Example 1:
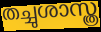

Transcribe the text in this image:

തച്ചുശാസ്ത്ര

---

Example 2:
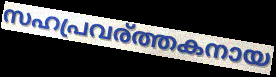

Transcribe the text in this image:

സഹപ്രവര്ത്തകനായ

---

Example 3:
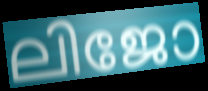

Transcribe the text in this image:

ലിജോ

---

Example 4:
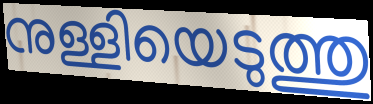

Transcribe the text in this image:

നുള്ളിയെടുത്തു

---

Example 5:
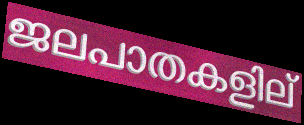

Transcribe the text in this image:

ജലപാതകളില്